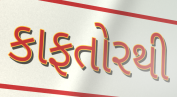
કાફતોરથી